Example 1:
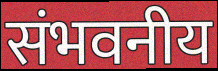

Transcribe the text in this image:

संभवनीय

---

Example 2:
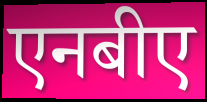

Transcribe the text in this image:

एनबीए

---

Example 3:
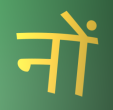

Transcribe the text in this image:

नों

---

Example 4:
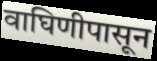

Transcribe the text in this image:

वाघिणीपासून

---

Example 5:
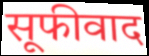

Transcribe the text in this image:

सूफीवाद